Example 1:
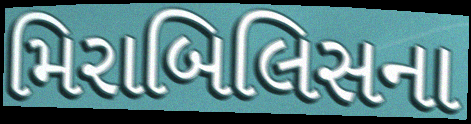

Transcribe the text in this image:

મિરાબિલિસના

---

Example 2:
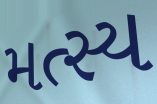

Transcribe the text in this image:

મત્સ્ય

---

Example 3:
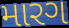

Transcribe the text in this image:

મારગ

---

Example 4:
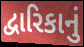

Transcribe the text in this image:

દ્વારિકાનું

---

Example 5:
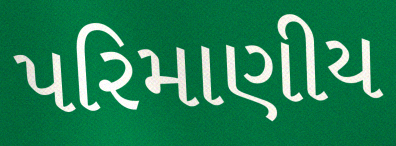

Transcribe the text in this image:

પરિમાણીય